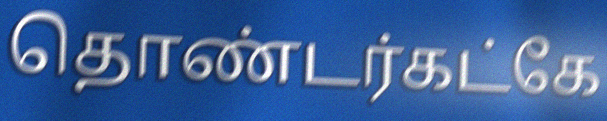
தொண்டர்கட்கே